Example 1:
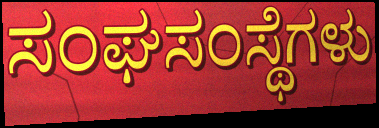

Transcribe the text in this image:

ಸಂಘಸಂಸ್ಥೆಗಳು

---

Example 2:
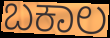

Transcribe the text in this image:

ಬಕಾಲ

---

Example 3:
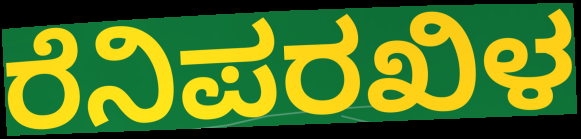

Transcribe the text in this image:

ರೆನಿಪರಖಿಳ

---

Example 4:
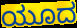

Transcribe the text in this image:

ಯೂದ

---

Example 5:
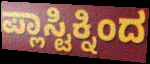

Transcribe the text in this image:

ಪ್ಲಾಸ್ಟಿಕ್ನಿಂದ